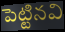
పెట్టినవి